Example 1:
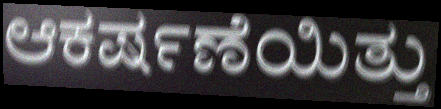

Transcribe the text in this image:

ಆಕರ್ಷಣೆಯಿತ್ತು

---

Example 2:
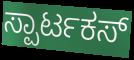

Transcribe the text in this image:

ಸ್ಪಾರ್ಟಕಸ್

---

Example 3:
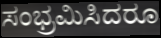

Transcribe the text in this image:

ಸಂಭ್ರಮಿಸಿದರೂ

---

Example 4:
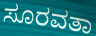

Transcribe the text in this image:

ಸೂರವತಾ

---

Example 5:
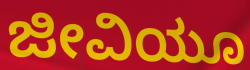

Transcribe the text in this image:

ಜೀವಿಯೂ